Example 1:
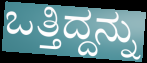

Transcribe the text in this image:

ಒತ್ತಿದ್ದನ್ನು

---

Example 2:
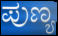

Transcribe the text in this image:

ಪುಣ್ಯ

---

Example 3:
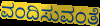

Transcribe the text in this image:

ವಂದಿಸುವಂತೆ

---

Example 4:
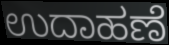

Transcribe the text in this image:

ಉದಾಹಣೆ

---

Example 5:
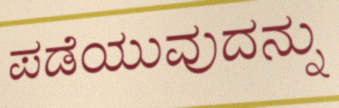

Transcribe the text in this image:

ಪಡೆಯುವುದನ್ನು